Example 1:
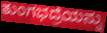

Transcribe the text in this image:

ತುಂಗಭದ್ರೆಯನ್ನು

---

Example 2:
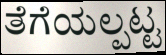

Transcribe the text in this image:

ತೆಗೆಯಲ್ಪಟ್ಟ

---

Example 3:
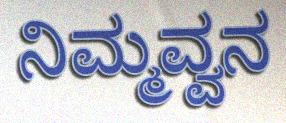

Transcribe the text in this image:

ನಿಮ್ಮವ್ವನ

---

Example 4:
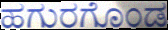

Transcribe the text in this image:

ಹಗುರಗೊಂಡ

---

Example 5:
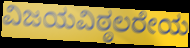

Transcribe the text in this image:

ವಿಜಯವಿಠ್ಠಲರೇಯ